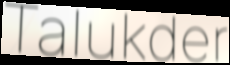
Talukder